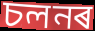
চলনৰ